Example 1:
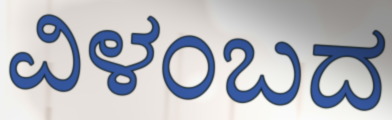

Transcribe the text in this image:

ವಿಳಂಬದ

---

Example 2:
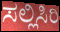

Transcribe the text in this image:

ಸಲ್ಲಿಸಿರಿ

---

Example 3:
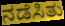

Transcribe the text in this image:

ನಡೆಸಿತು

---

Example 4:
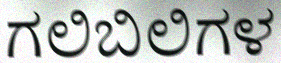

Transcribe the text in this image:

ಗಲಿಬಿಲಿಗಳ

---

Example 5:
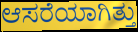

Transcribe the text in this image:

ಆಸರೆಯಾಗಿತ್ತು